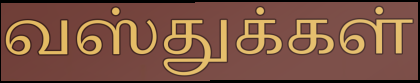
வஸ்துக்கள்